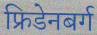
फ्रिडेनबर्ग